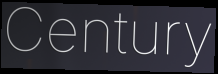
Century